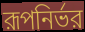
রূপনির্ভর